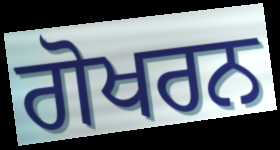
ਗੋਖਰਨ